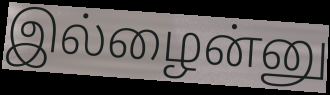
இல்ழைன்னு